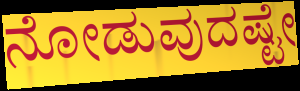
ನೋಡುವುದಷ್ಟೇ